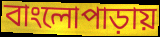
বাংলোপাড়ায়